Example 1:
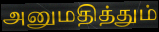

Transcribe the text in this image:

அனுமதித்தும்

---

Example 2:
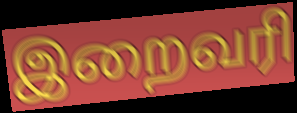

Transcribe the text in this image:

இறைவரி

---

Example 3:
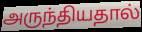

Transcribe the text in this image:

அருந்தியதால்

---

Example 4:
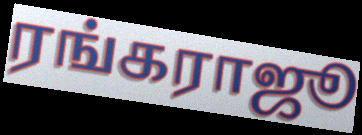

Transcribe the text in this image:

ரங்கராஜூ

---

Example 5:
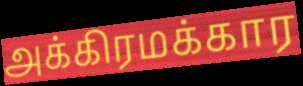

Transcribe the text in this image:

அக்கிரமக்கார